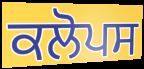
ਕਲੋਪਸ